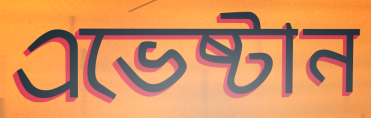
এভেষ্টান